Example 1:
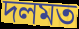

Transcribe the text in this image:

দলমত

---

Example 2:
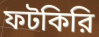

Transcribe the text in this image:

ফটকিরি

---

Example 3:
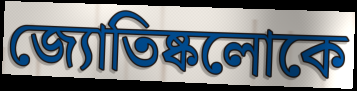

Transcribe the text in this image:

জ্যোতিষ্কলোকে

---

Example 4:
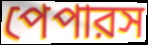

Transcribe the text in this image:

পেপারস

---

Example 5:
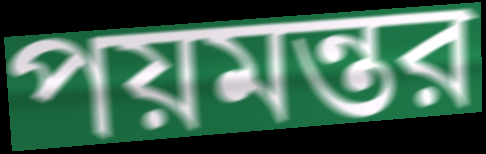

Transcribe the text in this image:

পয়মন্তর